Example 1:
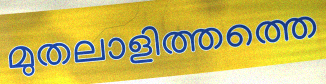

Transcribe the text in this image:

മുതലാളിത്തത്തെ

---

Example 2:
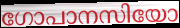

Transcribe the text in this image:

ഗോപാനസിയോ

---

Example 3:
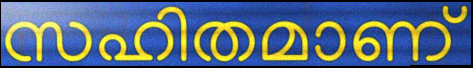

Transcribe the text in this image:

സഹിതമാണ്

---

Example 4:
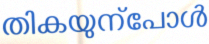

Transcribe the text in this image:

തികയുന്പോൾ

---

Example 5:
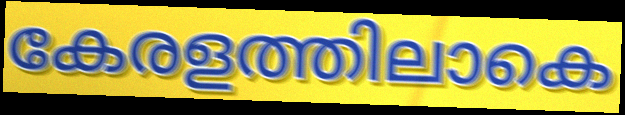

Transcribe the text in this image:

കേരളത്തിലാകെ